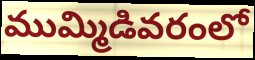
ముమ్మిడివరంలో